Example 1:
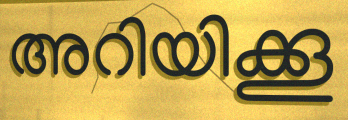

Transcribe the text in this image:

അറിയിക്കൂ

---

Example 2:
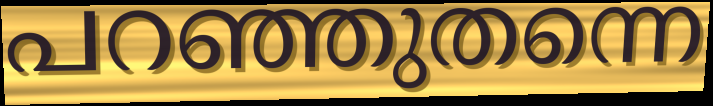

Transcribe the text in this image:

പറഞ്ഞുതന്നെ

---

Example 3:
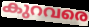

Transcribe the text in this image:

കുറവരെ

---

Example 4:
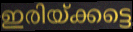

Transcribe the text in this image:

ഇരിയ്ക്കട്ടെ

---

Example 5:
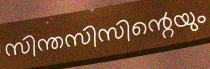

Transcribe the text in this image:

സിന്തസിസിന്റെയും